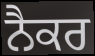
ਨੈਕਰ